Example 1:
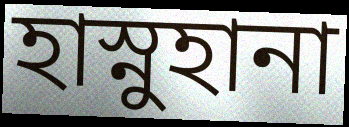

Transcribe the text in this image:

হাস্নুহানা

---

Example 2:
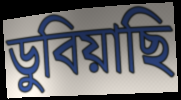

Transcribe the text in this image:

ডুবিয়াছি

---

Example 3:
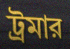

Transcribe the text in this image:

ট্রমার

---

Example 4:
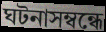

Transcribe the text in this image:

ঘটনাসম্বন্ধে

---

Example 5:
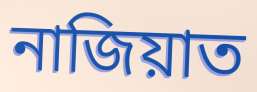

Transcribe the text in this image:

নাজিয়াত